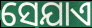
ସେଯାଏ